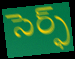
సెర్ఫ్